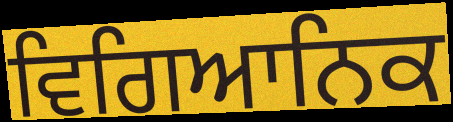
ਵਿਗਿਆਨਿਕ